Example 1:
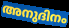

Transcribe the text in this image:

അനുദിനം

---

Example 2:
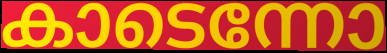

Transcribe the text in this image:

കാടെന്നോ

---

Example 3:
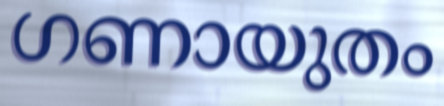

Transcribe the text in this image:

ഗണായുതം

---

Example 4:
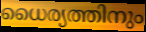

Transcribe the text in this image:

ധൈര്യത്തിനും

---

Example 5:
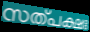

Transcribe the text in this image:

സത്പക്ഷഃ